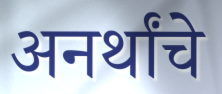
अनर्थांचे